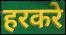
हरकरे